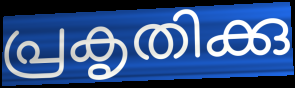
പ്രകൃതിക്കു